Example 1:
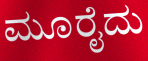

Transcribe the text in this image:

ಮೂರೈದು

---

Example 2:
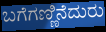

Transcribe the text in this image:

ಬಗೆಗಣ್ಣಿನೆದುರು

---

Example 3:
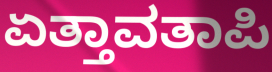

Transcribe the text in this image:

ಏತ್ತಾವತಾಪಿ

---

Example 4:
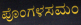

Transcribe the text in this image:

ಪೊಂಗಳಸಮಂ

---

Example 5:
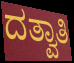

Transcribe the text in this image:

ದತ್ವಾತಿ